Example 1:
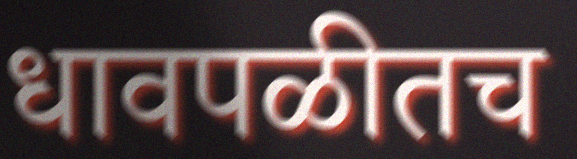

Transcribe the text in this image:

धावपळीतच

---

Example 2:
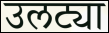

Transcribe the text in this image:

उलट्या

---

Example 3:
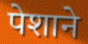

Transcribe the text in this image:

पेशाने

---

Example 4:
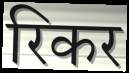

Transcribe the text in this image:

रिकर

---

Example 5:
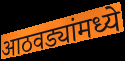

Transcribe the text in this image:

आठवड्यांमध्ये